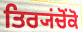
ਤਿਰ੍ਯਂਚੋਂਕੋ